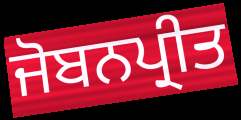
ਜੋਬਨਪ੍ਰੀਤ